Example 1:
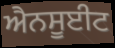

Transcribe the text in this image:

ਐਨਸੂਈਟ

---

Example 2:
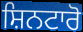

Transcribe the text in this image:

ਸ਼ਿਨਟਾਰੋ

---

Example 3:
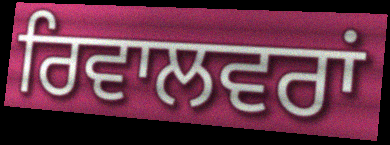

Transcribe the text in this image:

ਰਿਵਾਲਵਰਾਂ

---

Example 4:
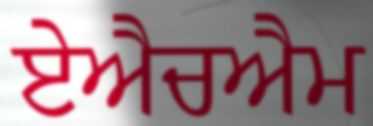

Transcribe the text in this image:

ਏਐਚਐਮ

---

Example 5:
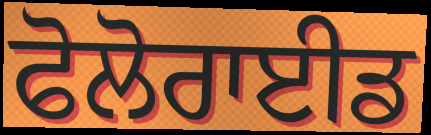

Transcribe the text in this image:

ਫੋਲੋਰਾਈਡ